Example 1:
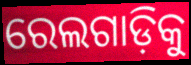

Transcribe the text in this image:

ରେଲଗାଡ଼ିକୁ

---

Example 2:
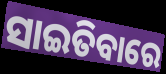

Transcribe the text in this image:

ସାଇତିବାରେ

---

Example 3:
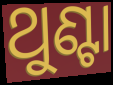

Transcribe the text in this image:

ଥୁଣ୍ଟା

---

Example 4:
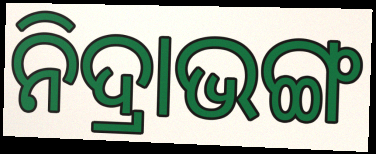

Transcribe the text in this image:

ନିଦ୍ରାଭଙ୍ଗ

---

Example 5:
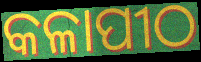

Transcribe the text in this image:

କଳାପୀଠ